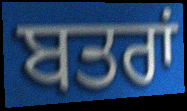
ਬਤਰਾਂ